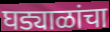
घड्याळांचा